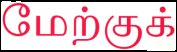
மேற்குக்